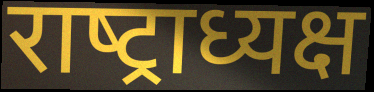
राष्ट्राध्यक्ष